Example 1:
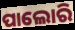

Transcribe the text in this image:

ପାଲୋରି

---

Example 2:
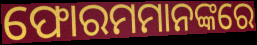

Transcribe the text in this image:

ଫୋରମମାନଙ୍କରେ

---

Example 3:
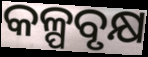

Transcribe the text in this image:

କଳ୍ପବୃକ୍ଷ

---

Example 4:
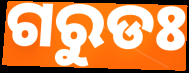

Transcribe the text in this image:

ଗରୁଡଃ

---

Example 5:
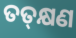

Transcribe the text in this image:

ତତ୍‌କ୍ଷଣ